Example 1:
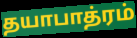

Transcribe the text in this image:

தயாபாத்ரம்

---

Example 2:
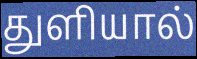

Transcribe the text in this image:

துளியால்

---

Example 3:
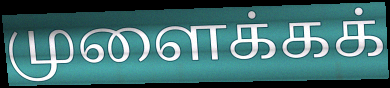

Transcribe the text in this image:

முளைக்கக்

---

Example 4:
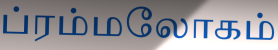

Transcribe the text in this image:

ப்ரம்மலோகம்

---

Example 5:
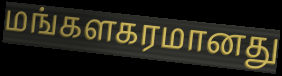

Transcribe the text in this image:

மங்களகரமானது